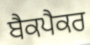
ਬੈਕਪੈਕਰ